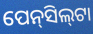
ପେନ୍‌ସିଲ୍‍ଟା